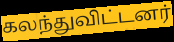
கலந்துவிட்டனர்